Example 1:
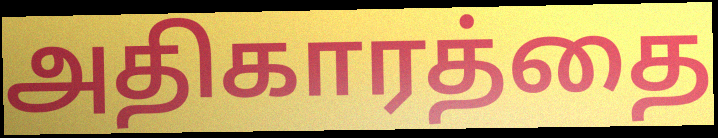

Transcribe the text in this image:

அதிகாரத்தை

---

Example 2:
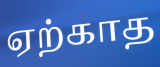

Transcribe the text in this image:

ஏற்காத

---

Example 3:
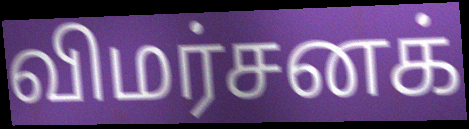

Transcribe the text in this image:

விமர்சனக்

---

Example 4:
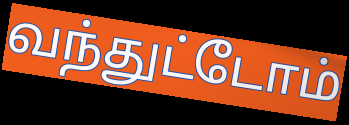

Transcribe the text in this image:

வந்துட்டோம்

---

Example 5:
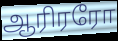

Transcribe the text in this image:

ஆரிரரோ